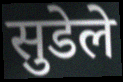
सुडेले